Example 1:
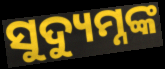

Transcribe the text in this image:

ସୁଦ୍ୟୁମ୍ନଙ୍କ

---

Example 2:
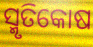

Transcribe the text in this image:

ସ୍ମୃତିକୋଷ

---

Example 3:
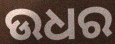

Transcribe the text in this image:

ଉଧର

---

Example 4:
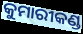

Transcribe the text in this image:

କୁମାରୀକଣ୍ଡ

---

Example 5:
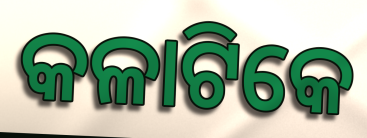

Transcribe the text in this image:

କଳାଟିକେ